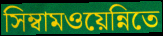
সিম্বামওয়েন্নিতে